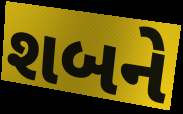
શબને